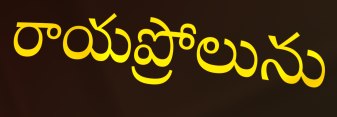
రాయప్రోలును